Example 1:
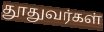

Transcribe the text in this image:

தூதுவர்கள்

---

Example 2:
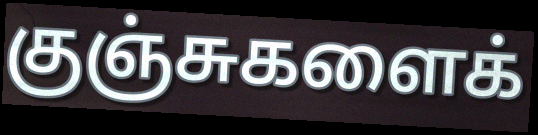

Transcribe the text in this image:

குஞ்சுகளைக்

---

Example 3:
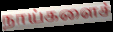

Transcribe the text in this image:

நாய்களைச்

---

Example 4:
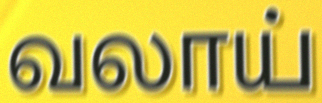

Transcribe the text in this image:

வலாய்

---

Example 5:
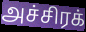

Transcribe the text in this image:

அச்சிரக்